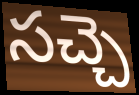
సచ్చె